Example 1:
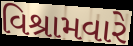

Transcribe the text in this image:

વિશ્રામવારે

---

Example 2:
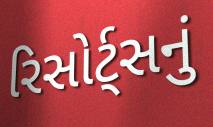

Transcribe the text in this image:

રિસોર્ટ્સનું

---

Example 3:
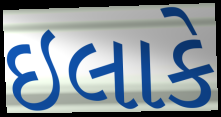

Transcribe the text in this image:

ઇલાકે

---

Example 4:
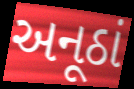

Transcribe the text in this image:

અનૂઠાં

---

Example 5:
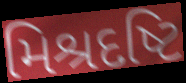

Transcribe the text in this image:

મિશ્રદષ્ટિ